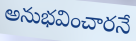
అనుభవించారనే